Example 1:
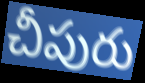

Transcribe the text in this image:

చీపురు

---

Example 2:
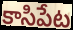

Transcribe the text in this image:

కాసిపేట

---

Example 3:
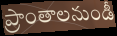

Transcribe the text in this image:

ప్రాంతాలనుండీ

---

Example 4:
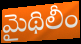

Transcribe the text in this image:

మైథిలీం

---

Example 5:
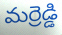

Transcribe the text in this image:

మర్రెడ్డి